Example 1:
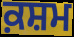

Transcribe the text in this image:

ਕ਼ਸ਼ਮ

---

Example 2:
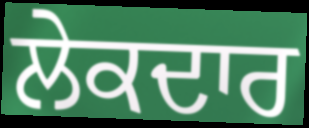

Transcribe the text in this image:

ਲੇਕਦਾਰ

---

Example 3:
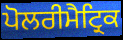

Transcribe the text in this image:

ਪੋਲਰੀਮੈਟ੍ਰਿਕ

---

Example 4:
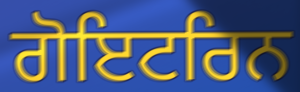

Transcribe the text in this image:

ਗੋਇਟਰਿਨ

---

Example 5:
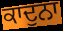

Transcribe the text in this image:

ਕਾਦੁਨਾ